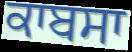
ਕਾਬਸਾ